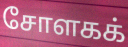
சோளகக்